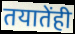
तयातेंही